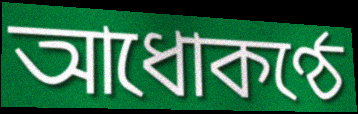
আধোকণ্ঠে